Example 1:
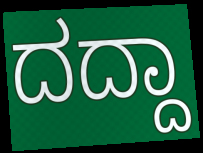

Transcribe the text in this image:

ದದ್ದಾ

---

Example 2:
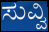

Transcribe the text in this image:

ಸುವ್ವಿ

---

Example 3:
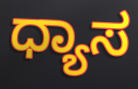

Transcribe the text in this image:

ಧ್ಯಾಸ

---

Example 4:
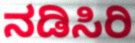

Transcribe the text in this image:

ನಡಿಸಿರಿ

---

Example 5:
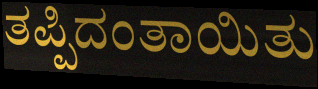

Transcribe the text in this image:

ತಪ್ಪಿದಂತಾಯಿತು